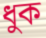
ধুক